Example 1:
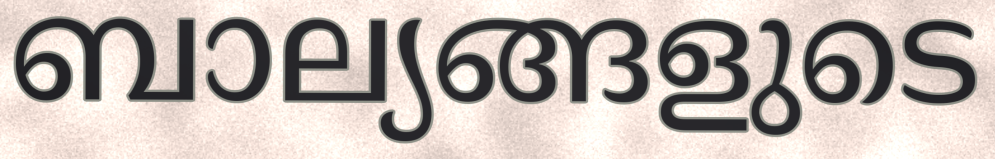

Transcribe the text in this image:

ബാല്യങ്ങളുടെ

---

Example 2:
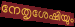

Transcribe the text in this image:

നേതൃശേഷിയും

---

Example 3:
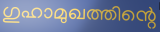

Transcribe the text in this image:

ഗുഹാമുഖത്തിന്റെ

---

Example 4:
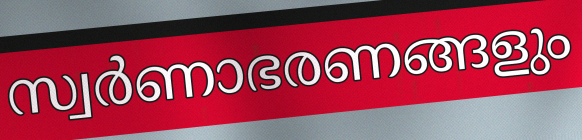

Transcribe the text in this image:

സ്വർണാഭരണങ്ങളും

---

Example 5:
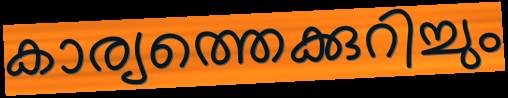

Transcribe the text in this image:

കാര്യത്തെക്കുറിച്ചും